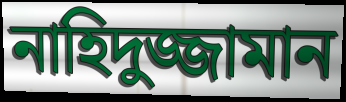
নাহিদুজ্জামান